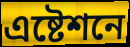
এষ্টেশনে